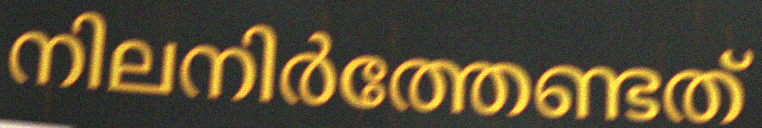
നിലനിർത്തേണ്ടത്